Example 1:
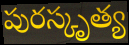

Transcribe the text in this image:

పురస్కృత్య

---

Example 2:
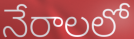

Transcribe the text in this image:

నేరాలలో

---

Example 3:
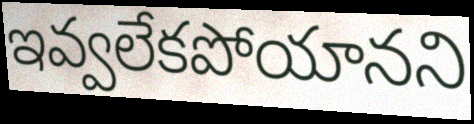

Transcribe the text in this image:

ఇవ్వలేకపోయానని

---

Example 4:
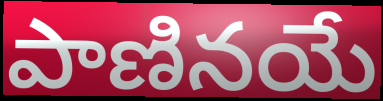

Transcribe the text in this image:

పాణినయే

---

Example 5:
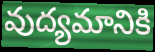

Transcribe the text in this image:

వుద్యమానికి